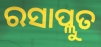
ରସାପ୍ଲୁତ